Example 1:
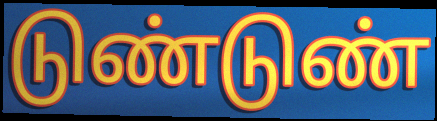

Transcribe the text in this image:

டுண்டுண்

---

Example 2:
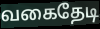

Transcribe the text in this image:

வகைதேடி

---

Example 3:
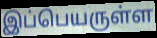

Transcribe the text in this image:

இப்பெயருள்ள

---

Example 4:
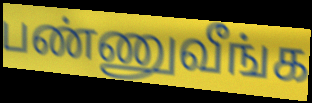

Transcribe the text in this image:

பண்ணுவீங்க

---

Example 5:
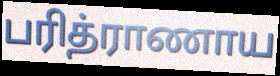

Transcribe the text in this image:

பரித்ராணாய